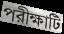
পরীক্ষাটি